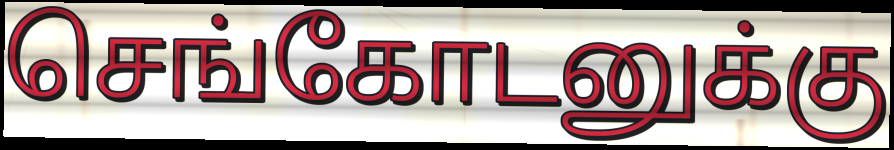
செங்கோடனுக்கு